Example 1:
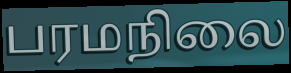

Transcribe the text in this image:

பரமநிலை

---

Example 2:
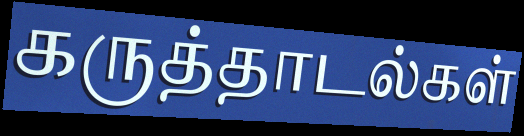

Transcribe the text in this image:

கருத்தாடல்கள்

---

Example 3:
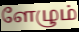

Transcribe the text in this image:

ளேழும்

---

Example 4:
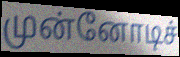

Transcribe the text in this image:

முன்னோடிச்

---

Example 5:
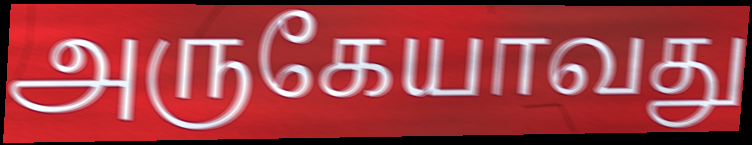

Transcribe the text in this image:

அருகேயாவது